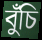
বুঁচি